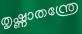
തൃഷ്ണാതന്ത്രേ